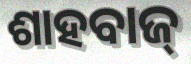
ଶାହବାଜ୍